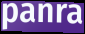
panra